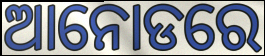
ଆନୋଡରେ